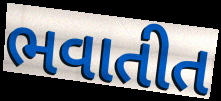
ભવાતીત